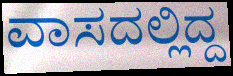
ವಾಸದಲ್ಲಿದ್ದ